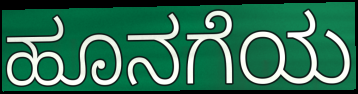
ಹೂನಗೆಯ